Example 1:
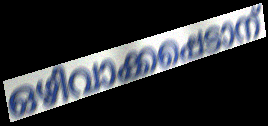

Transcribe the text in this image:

ഒഴിവാക്കപ്പെടാന്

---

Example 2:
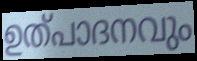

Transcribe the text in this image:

ഉത്പാദനവും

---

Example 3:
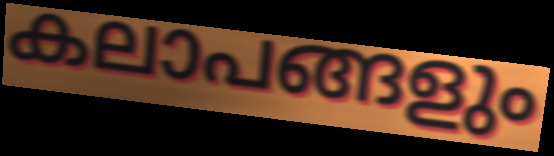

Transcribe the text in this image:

കലാപങ്ങളും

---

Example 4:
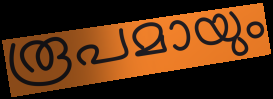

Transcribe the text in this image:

രൂപമായും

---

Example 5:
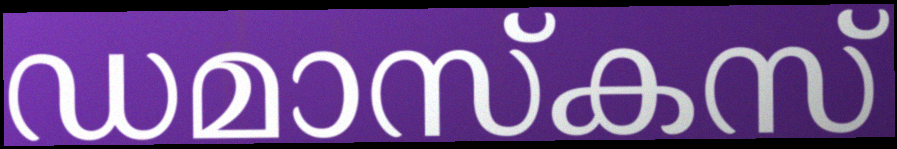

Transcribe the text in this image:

ഡമാസ്കസ്